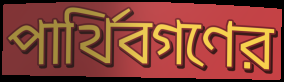
পার্থিবগণের